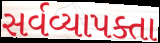
સર્વવ્યાપક્તા